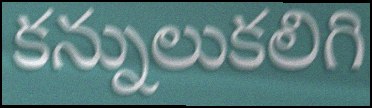
కన్నులుకలిగి